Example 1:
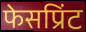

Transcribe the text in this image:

फेसप्रिंट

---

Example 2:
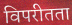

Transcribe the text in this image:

विपरीतता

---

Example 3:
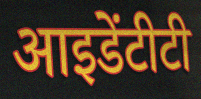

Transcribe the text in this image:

आइडेंटीटी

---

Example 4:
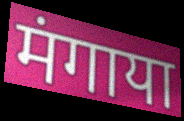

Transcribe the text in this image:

मंगाया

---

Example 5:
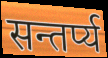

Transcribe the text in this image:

सन्तर्प्य